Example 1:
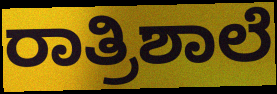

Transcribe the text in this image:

ರಾತ್ರಿಶಾಲೆ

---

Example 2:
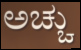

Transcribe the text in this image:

ಅಚ್ಚು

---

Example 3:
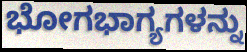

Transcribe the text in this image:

ಭೋಗಭಾಗ್ಯಗಳನ್ನು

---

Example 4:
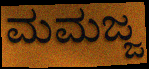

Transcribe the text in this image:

ಮಮಜ್ಜ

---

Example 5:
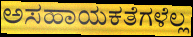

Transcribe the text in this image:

ಅಸಹಾಯಕತೆಗಳೆಲ್ಲ